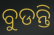
ବୁଡନ୍ତି